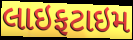
લાઇફટાઇમ